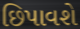
છિપાવશે